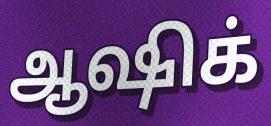
ஆஷிக்